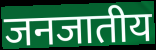
जनजातीय